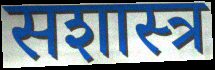
सशास्त्र